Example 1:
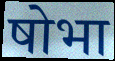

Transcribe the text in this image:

षोभा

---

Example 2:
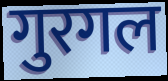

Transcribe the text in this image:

गुरगल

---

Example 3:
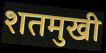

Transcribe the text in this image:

शतमुखी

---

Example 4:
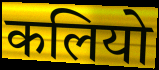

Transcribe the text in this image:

कलियो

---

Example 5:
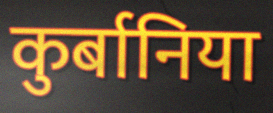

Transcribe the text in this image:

कुर्बानिया